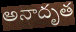
అనాదృత